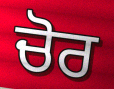
ਚੋਰ